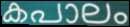
കപാലം